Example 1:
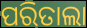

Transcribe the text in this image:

ପରିତାଲା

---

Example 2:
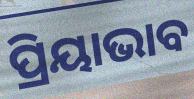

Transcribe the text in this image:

ପ୍ରିୟାଭାବ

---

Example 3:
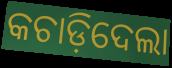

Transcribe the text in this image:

କଚାଡ଼ିଦେଲା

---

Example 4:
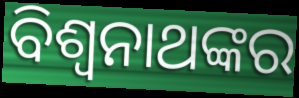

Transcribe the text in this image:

ବିଶ୍ୱନାଥଙ୍କର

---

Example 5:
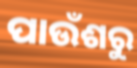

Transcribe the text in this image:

ପାଉଁଶରୁ